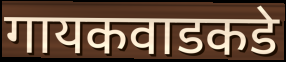
गायकवाडकडे